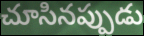
చూసినప్పుడు